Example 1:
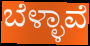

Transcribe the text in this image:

ಬೆಳ್ಳಾವೆ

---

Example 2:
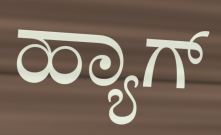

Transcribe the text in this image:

ಹ್ಯಾಗ್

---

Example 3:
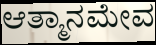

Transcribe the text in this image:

ಆತ್ಮಾನಮೇವ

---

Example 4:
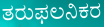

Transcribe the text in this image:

ತರುಫಲನಿಕರ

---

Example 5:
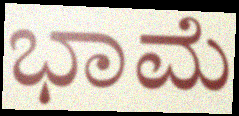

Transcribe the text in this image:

ಭಾಮೆ